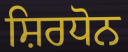
ਸ਼ਿਰਧੋਨ